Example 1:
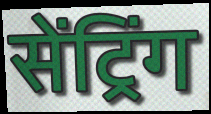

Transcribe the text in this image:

सेंट्रिंग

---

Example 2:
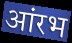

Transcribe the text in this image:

आंरभ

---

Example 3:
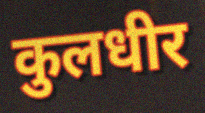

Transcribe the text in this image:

कुलधीर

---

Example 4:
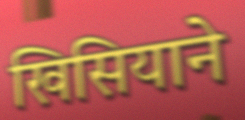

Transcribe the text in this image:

खिसियाने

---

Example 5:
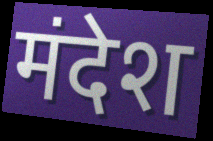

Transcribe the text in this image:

मंदेश